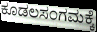
ಕೂಡಲಸಂಗಮಕ್ಕೆ